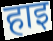
हाइ